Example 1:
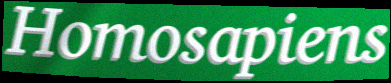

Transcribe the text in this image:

Homosapiens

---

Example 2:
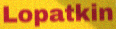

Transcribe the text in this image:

Lopatkin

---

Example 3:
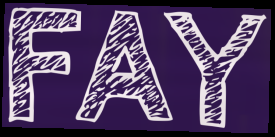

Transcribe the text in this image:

FAY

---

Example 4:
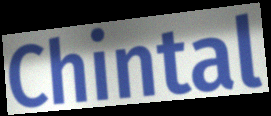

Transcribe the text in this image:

Chintal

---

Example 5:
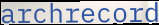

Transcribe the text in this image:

archrecord